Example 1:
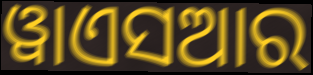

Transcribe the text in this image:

ୱାଏସଆର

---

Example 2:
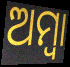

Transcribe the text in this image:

ଅମ୍ବା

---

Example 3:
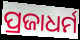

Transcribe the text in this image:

ପ୍ରଜାଧର୍ମ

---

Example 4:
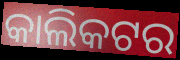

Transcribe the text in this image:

କାଲିକଟର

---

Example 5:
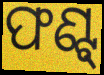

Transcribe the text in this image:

ଫଣ୍ଟ୍